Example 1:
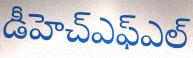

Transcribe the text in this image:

డీహెచ్ఎఫ్ఎల్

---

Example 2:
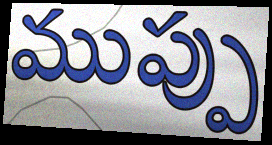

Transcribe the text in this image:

ముప్పు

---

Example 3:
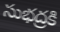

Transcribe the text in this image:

సుభద్రకి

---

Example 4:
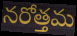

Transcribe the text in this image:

నరోత్తమ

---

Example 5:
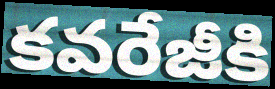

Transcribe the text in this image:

కవరేజీకి